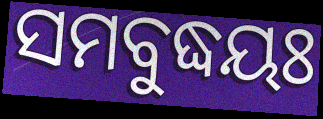
ସମବୁଦ୍ଧୟଃ